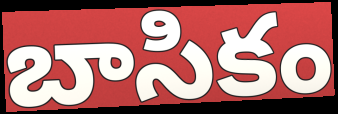
బాసికం